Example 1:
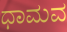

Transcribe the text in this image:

ಧಾಮವ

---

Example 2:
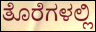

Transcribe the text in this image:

ತೊರೆಗಳಲ್ಲಿ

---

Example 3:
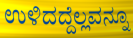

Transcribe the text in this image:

ಉಳಿದದ್ದೆಲ್ಲವನ್ನೂ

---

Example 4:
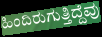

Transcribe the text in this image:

ಹಿಂದಿರುಗುತ್ತಿದ್ದೆವು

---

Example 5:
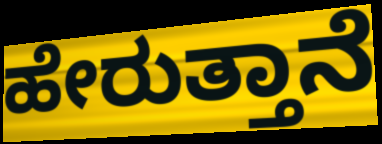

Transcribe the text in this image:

ಹೇರುತ್ತಾನೆ